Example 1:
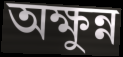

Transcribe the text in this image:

অক্ষুন্ন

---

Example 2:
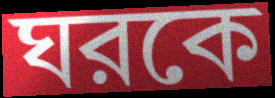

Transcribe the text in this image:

ঘরকে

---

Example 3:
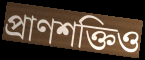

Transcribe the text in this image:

প্রাণশক্তিও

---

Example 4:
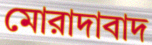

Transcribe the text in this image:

মোরাদাবাদ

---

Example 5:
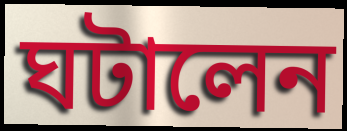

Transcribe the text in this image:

ঘটালেন